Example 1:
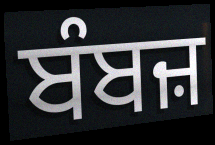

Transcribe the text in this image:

ਬੰਬਜ਼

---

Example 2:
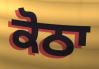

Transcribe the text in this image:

ਕੋਠਾ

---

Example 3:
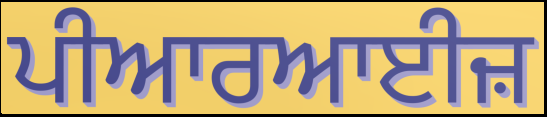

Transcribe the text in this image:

ਪੀਆਰਆਈਜ਼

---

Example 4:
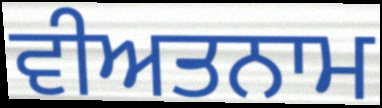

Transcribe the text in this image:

ਵੀਅਤਨਾਮ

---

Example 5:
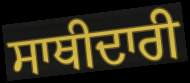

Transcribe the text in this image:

ਸਾਥੀਦਾਰੀ